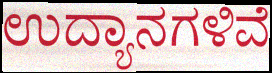
ಉದ್ಯಾನಗಳಿವೆ